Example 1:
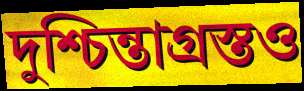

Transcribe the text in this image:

দুশ্চিন্তাগ্রস্তও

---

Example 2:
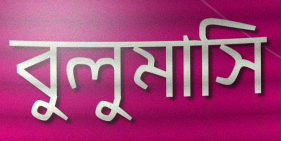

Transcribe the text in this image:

বুলুমাসি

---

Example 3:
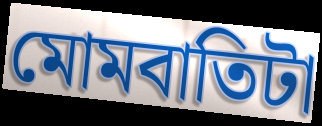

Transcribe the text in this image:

মোমবাতিটা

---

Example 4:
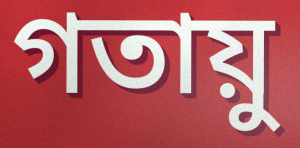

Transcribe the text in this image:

গতায়ু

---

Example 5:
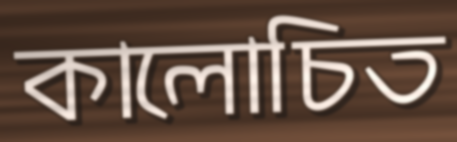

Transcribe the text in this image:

কালোচিত